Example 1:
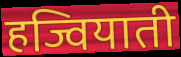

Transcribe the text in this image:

हज्वियाती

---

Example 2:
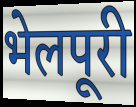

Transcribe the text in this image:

भेलपूरी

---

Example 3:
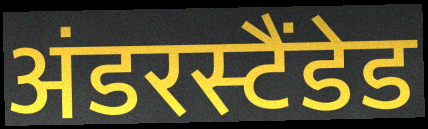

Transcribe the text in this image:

अंडरस्टैंडेड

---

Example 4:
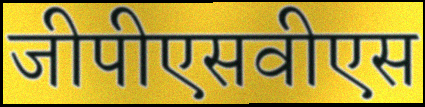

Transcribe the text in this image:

जीपीएसवीएस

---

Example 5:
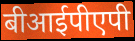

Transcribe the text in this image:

बीआईपीएपी